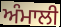
ਅੰਮਾਲੀ